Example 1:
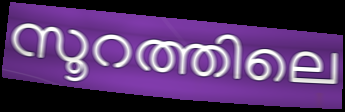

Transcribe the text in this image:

സൂറത്തിലെ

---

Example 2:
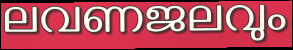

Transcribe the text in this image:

ലവണജലവും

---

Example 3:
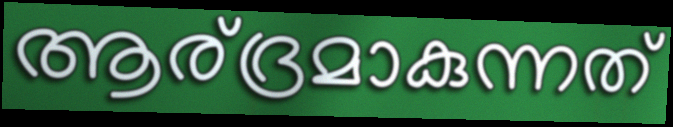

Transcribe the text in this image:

ആര്ദ്രമാകുന്നത്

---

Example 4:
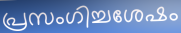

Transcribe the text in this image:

പ്രസംഗിച്ചശേഷം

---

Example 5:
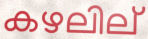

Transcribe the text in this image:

കഴലില്